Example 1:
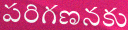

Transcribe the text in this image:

పరిగణనకు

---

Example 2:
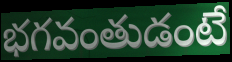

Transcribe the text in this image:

భగవంతుడంటే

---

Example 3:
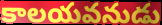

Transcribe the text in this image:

కాలయవనుడు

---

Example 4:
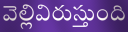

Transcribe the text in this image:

వెల్లివిరుస్తుంది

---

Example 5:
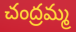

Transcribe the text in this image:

చంద్రమ్మ